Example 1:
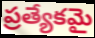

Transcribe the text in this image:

ప్రత్యేకమై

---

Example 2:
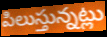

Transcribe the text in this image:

పిలుస్తున్నట్లు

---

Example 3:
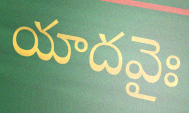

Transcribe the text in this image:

యాదవైః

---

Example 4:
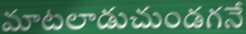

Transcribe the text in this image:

మాటలాడుచుండగనే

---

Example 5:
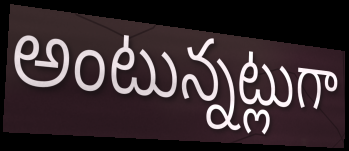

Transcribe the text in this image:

అంటున్నట్లుగా